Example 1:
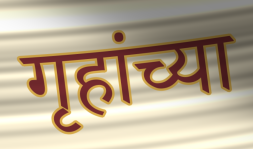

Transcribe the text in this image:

गृहांच्या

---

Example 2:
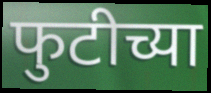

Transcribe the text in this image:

फुटीच्या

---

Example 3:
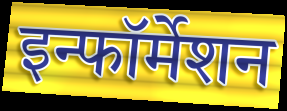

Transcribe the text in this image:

इन्फॉर्मेशन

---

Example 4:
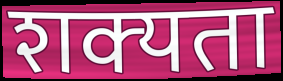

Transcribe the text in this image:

शक्‍यता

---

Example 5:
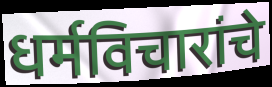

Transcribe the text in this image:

धर्मविचारांचे